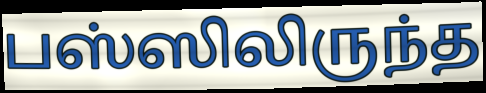
பஸ்ஸிலிருந்த